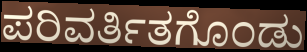
ಪರಿವರ್ತಿತಗೊಂಡು